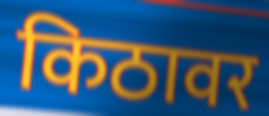
किठावर